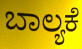
ಬಾಲ್ಯಕೆ